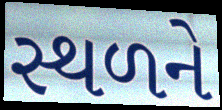
સ્થળને